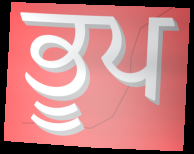
ਭੂਪ